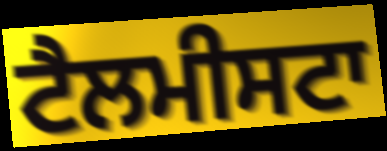
ਟੈਲਮੀਸਟਾ